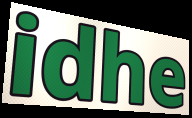
idhe